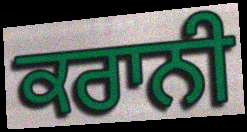
ਕਰਾਨੀ